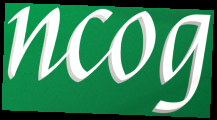
ncog